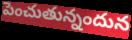
పెంచుతున్నందున